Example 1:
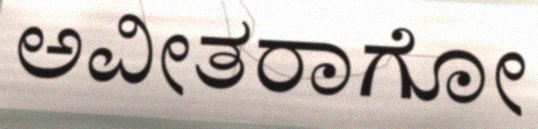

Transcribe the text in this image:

ಅವೀತರಾಗೋ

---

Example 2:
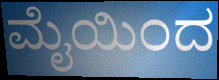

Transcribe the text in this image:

ಮೈಯಿಂದ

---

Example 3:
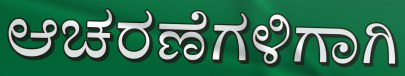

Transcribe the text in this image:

ಆಚರಣೆಗಳಿಗಾಗಿ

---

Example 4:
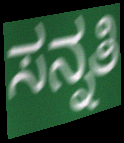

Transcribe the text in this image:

ಸನ್ನತಿ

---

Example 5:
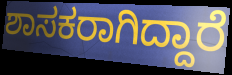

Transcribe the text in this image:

ಶಾಸಕರಾಗಿದ್ದಾರೆ